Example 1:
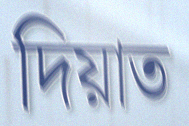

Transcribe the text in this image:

দিয়াত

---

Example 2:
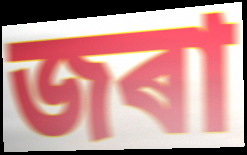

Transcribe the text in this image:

জৰা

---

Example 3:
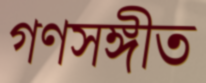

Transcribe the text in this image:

গণসঙ্গীত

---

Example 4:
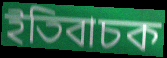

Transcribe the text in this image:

ইতিবাচক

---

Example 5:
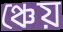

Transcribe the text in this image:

ঞ্চেয়